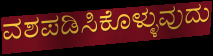
ವಶಪಡಿಸಿಕೊಳ್ಳುವುದು